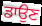
ਡਾਉਣ